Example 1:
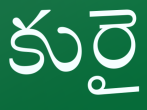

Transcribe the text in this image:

కురై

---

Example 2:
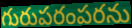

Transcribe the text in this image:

గురుపరంపరను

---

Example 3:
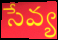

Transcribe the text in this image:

సేవ్య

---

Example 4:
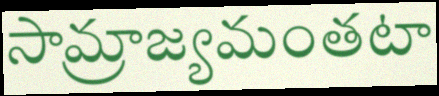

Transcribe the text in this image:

సామ్రాజ్యమంతటా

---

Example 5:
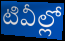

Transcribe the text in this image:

టివీల్లో